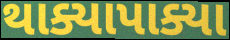
થાક્યાપાક્યા